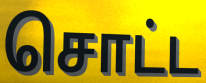
சொட்ட